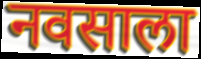
नवसाला